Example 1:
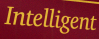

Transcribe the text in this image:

Intelligent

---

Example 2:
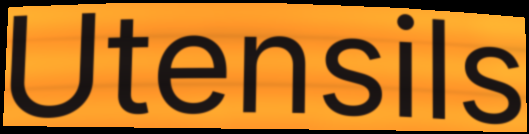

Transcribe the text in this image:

Utensils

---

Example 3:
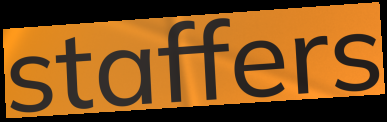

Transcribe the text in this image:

staffers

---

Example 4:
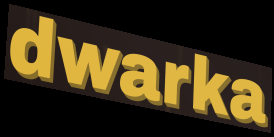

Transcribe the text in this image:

dwarka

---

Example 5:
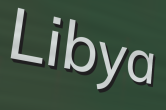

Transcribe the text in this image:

Libya